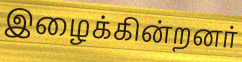
இழைக்கின்றனர்